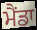
ਮੈਂਡਾ